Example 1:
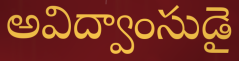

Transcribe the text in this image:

అవిద్వాంసుడై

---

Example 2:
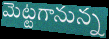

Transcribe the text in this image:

మెట్టగానున్న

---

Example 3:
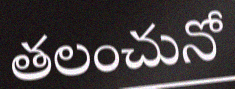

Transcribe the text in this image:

తలంచునో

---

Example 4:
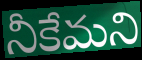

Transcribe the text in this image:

నీకేమని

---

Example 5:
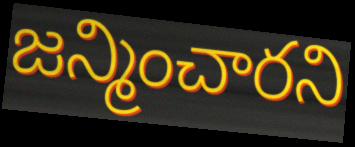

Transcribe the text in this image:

జన్మించారని